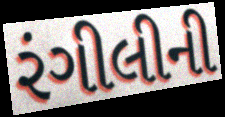
રંગીલીની